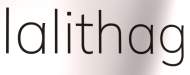
lalithag